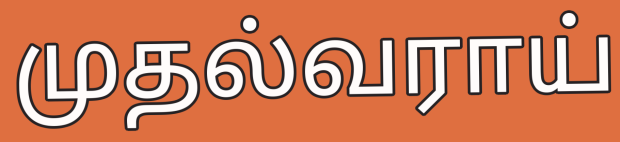
முதல்வராய்